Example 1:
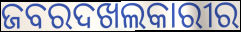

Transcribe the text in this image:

ଜବରଦଖଲକାରୀର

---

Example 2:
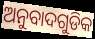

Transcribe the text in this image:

ଅନୁବାଦଗୁଡିକ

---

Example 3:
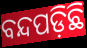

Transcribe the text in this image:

ବନ୍ଦପଡ଼ିଛି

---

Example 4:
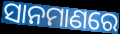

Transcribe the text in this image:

ସାନମାଣରେ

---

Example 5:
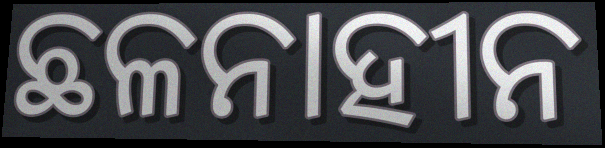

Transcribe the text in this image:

ଛଳନାହୀନ